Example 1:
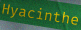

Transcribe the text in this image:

Hyacinthe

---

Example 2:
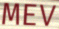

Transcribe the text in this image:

MEV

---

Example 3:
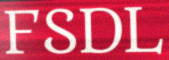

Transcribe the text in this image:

FSDL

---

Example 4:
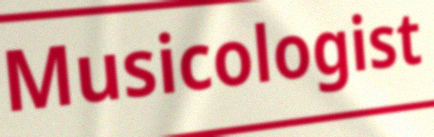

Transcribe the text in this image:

Musicologist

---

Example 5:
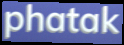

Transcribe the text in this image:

phatak